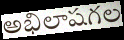
అభిలాషగల